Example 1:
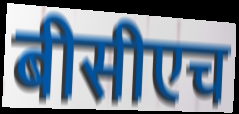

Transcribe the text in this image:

बीसीएच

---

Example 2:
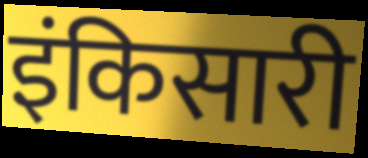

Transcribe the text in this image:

इंकिसारी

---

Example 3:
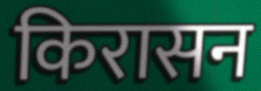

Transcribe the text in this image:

किरासन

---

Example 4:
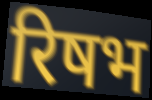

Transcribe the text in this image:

रिषभ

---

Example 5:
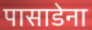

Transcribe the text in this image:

पासाडेना